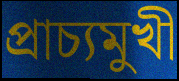
প্রাচ্যমুখী